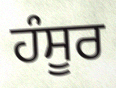
ਹੰਸੂਰ